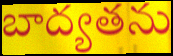
బాద్యతను